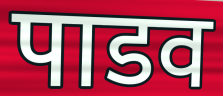
पाडव